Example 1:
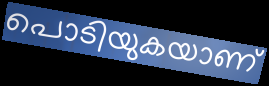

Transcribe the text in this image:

പൊടിയുകയാണ്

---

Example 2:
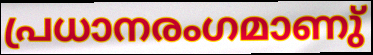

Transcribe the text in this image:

പ്രധാനരംഗമാണു്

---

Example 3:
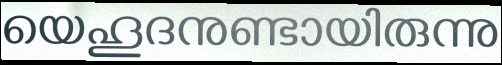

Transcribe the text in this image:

യെഹൂദനുണ്ടായിരുന്നു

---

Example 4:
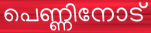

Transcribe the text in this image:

പെണ്ണിനോട്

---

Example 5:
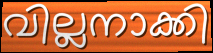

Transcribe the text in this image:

വില്ലനാക്കി